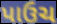
પાઉચ